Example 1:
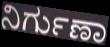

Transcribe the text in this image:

ನಿರ್ಗುಣಾ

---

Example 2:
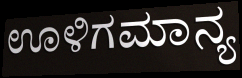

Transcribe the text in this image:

ಊಳಿಗಮಾನ್ಯ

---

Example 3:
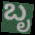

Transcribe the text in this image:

ಬೃ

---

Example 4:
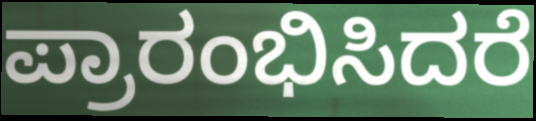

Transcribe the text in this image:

ಪ್ರಾರಂಭಿಸಿದರೆ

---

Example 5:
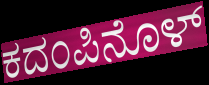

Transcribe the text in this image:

ಕದಂಪಿನೊಳ್